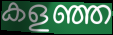
കളഞ്ഞ